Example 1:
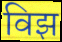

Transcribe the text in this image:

विझ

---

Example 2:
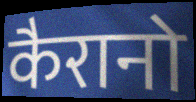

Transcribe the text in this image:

कैरानो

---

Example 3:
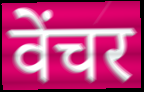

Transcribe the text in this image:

वेंचर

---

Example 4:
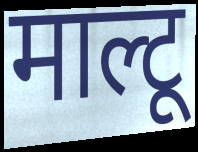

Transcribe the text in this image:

माल्टू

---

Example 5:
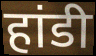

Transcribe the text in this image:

हांडी